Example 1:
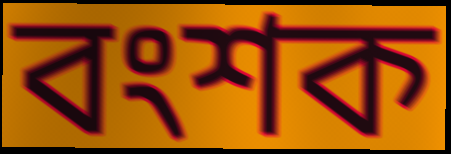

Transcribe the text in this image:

বংশক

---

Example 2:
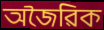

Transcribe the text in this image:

অজৈৱিক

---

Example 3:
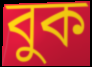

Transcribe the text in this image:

বুক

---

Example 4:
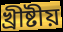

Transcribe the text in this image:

খ্ৰীষ্টীয়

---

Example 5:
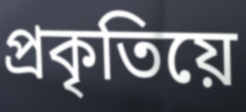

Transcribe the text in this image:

প্ৰকৃতিয়ে